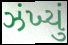
ઝંખ્યું